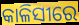
କାଳିସୀରେ